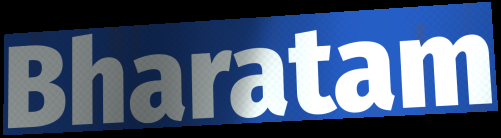
Bharatam